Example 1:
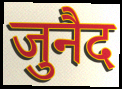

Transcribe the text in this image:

जुनैद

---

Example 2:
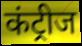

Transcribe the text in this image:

कंट्रीज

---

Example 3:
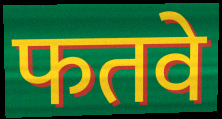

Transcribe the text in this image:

फतवे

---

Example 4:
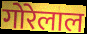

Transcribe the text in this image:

गोरेलाल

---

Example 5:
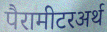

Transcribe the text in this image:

पैरामीटरअर्थ